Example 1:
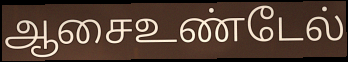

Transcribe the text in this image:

ஆசைஉண்டேல்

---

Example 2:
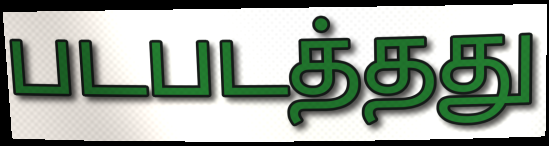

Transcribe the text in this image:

படபடத்தது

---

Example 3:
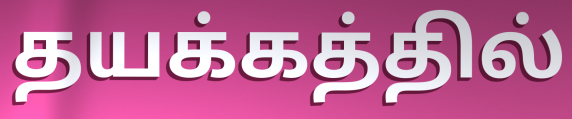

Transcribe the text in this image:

தயக்கத்தில்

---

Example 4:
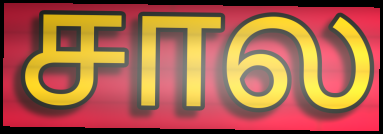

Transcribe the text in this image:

சால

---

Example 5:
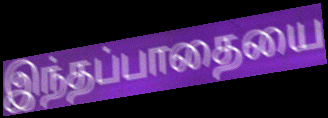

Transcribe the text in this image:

இந்தப்பாதையை